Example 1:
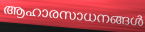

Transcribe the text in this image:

ആഹാരസാധനങ്ങൾ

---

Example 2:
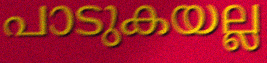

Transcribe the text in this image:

പാടുകയല്ല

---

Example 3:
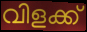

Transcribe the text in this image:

വിളക്ക്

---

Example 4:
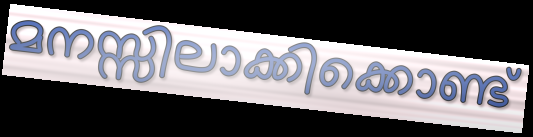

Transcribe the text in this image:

മനസ്സിലാക്കിക്കൊണ്ട്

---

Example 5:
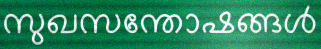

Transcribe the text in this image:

സുഖസന്തോഷങ്ങൾ